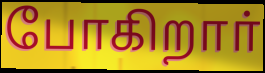
போகிறார்